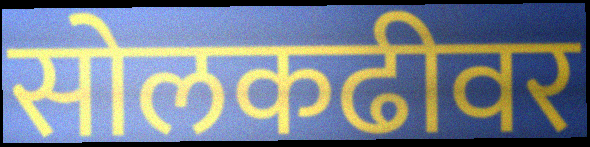
सोलकढीवर